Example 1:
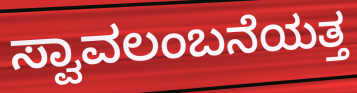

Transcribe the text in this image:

ಸ್ವಾವಲಂಬನೆಯತ್ತ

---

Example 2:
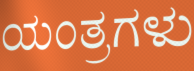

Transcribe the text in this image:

ಯಂತ್ರಗಳು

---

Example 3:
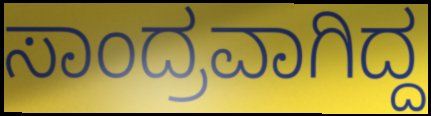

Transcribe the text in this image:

ಸಾಂದ್ರವಾಗಿದ್ದ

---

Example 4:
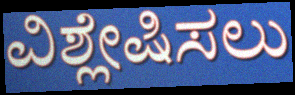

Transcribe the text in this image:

ವಿಶ್ಲೇಷಿಸಲು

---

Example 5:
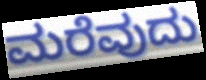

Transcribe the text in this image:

ಮರೆವುದು